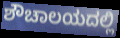
ಶೌಚಾಲಯದಲ್ಲಿ